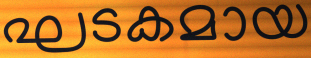
ഘടകമായ